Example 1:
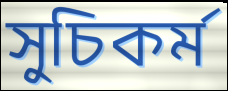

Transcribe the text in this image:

সুচিকর্ম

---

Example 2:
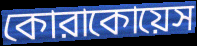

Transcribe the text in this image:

কোরাকোয়েস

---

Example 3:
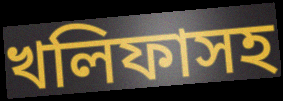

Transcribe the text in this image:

খলিফাসহ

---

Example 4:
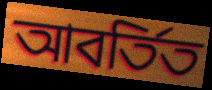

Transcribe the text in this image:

আবর্তিত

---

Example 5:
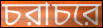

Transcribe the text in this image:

চরাচরে